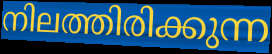
നിലത്തിരിക്കുന്ന